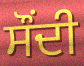
ਸੌਂਦੀ